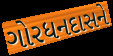
ગોરધનદાસને